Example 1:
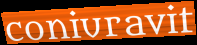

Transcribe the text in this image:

coniuravit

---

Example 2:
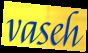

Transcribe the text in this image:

vaseh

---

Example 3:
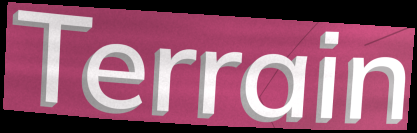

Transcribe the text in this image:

Terrain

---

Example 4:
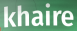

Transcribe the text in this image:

khaire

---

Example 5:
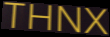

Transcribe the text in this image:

THNX